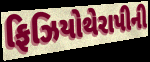
ફિઝિયોથેરાપીની